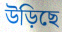
উড়িছে